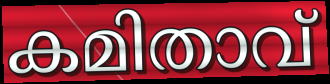
കമിതാവ്